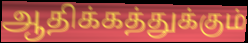
ஆதிக்கத்துக்கும்